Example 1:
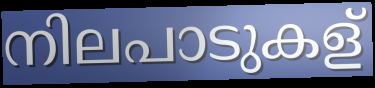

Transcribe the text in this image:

നിലപാടുകള്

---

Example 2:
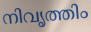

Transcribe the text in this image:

നിവൃത്തിം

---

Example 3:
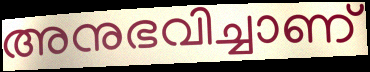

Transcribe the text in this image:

അനുഭവിച്ചാണ്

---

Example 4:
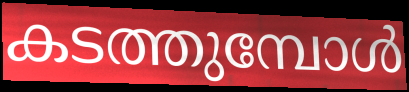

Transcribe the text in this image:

കടത്തുമ്പോൾ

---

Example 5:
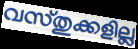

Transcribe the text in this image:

വസ്തുക്കളില്ല